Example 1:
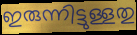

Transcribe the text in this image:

ഇരുന്നിട്ടുള്ളതു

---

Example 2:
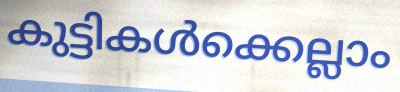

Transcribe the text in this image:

കുട്ടികൾക്കെല്ലാം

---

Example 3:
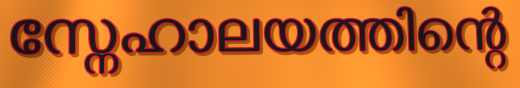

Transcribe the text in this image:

സ്നേഹാലയത്തിന്റെ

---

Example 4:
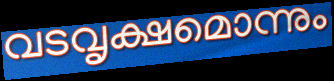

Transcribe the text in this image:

വടവൃക്ഷമൊന്നും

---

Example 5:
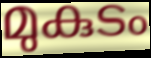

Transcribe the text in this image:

മുകുടം